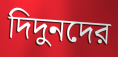
দিদুনদের